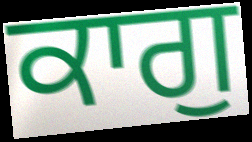
ਕਾਗੁ